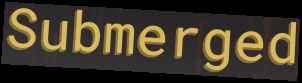
Submerged